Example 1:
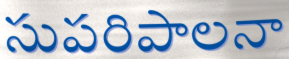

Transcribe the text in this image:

సుపరిపాలనా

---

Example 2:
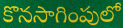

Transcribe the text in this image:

కొనసాగింపులో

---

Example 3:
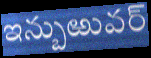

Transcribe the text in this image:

ఇన్బుఱువర్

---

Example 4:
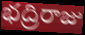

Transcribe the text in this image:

భద్రిరాజు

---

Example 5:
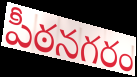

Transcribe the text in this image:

పీఠనగరం